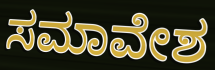
ಸಮಾವೇಶ